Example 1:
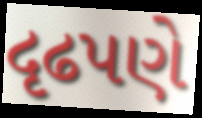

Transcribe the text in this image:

દૃઢપણે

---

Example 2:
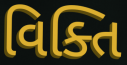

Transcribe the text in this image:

વિક્તિ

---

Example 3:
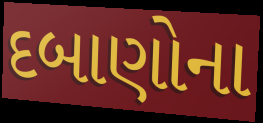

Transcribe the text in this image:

દબાણોના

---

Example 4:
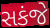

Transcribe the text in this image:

સકંજે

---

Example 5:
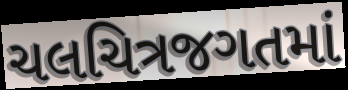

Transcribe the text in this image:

ચલચિત્રજગતમાં